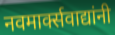
नवमार्क्सवाद्यांनी